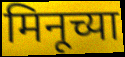
मिनूच्या